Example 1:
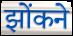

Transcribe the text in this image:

झोंकने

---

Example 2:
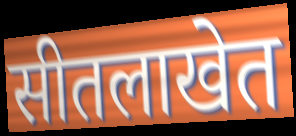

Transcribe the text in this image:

सीतलाखेत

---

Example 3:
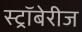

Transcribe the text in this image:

स्ट्रॉबेरीज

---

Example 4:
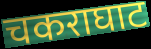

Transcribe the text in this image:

चकराघाट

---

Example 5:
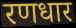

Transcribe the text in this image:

रणधार